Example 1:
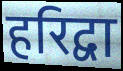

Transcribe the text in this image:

हरिद्वा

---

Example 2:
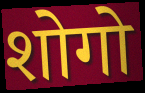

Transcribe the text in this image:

शोगो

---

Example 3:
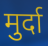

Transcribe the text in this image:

मुर्दा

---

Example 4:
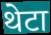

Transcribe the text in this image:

थेटा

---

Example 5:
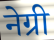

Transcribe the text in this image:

नेग्री